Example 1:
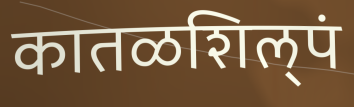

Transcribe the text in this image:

कातळशिल्पं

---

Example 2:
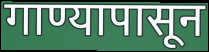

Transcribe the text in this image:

गाण्यापासून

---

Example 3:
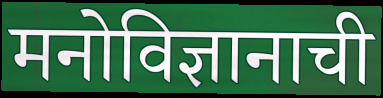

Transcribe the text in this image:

मनोविज्ञानाची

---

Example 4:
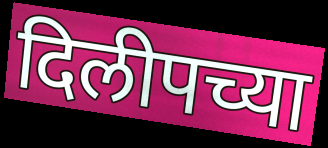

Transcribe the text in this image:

दिलीपच्या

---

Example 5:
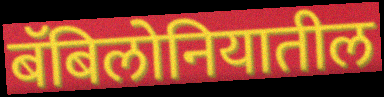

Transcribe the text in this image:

बॅबिलोनियातील